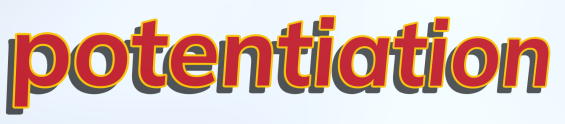
potentiation